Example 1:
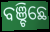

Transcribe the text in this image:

ବଞ୍ଚିଛେ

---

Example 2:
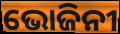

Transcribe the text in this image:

ଭୋଜିନୀ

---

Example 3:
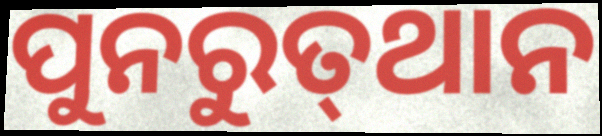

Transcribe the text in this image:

ପୁନରୁତ୍‌ଥାନ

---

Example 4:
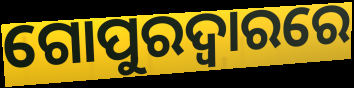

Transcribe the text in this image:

ଗୋପୁରଦ୍ବାରରେ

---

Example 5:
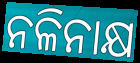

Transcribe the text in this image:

ନଳିନାକ୍ଷ